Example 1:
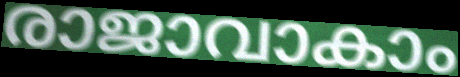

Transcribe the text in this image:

രാജാവാകാം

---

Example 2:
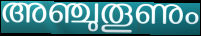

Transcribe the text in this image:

അഞ്ചുതൂണും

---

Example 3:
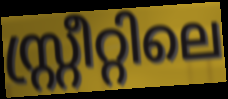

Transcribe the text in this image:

സ്റ്റ്രീറ്റിലെ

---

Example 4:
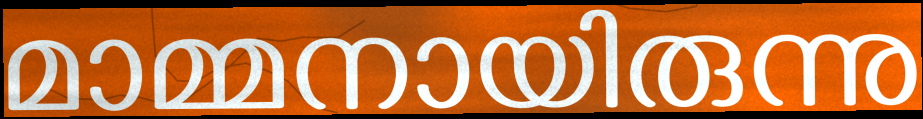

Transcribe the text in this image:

മാമ്മനായിരുന്നു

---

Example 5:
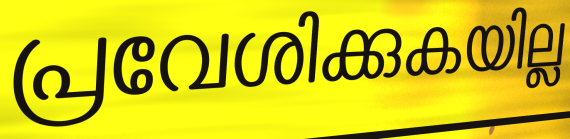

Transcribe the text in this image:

പ്രവേശിക്കുകയില്ല